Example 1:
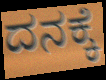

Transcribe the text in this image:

ದನಕ್ಕೆ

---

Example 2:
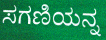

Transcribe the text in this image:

ಸಗಣಿಯನ್ನ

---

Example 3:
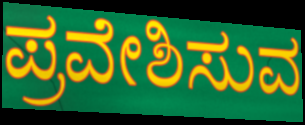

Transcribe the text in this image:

ಪ್ರವೇಶಿಸುವ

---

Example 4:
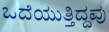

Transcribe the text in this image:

ಒದೆಯುತ್ತಿದ್ದವು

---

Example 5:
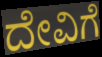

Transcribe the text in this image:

ದೇವಿಗೆ